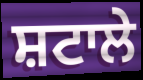
ਸ਼ਟਾਲੇ